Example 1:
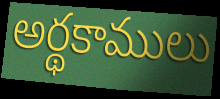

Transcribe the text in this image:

అర్థకాములు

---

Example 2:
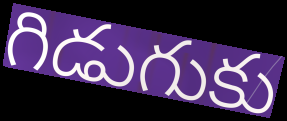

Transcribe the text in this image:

గిడుగుకు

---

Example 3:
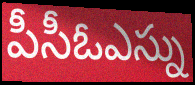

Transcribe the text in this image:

పీసీఓఎస్ను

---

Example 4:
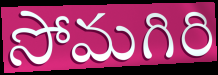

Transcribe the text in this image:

సోమగిరి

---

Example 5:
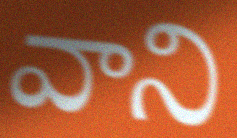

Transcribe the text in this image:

వాని